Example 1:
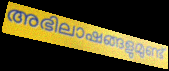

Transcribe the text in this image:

അഭിലാഷങ്ങളുമുണ്ട്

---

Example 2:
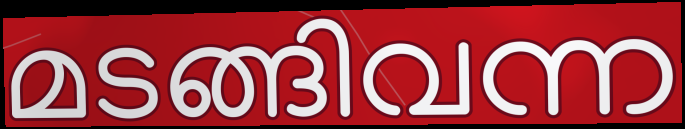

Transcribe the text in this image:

മടങ്ങിവന്ന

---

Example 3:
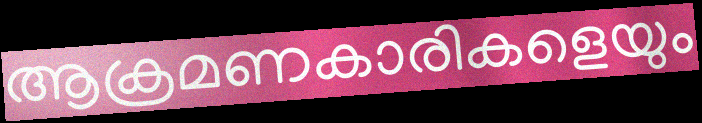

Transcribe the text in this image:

ആക്രമണകാരികളെയും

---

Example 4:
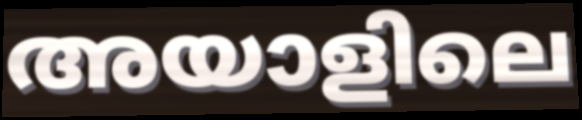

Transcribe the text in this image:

അയാളിലെ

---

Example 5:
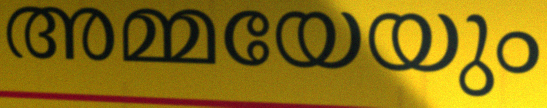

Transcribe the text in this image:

അമ്മയേയും